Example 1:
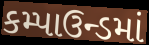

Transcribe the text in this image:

કમ્પાઉન્ડમાં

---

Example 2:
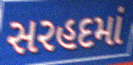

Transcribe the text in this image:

સરહદમાં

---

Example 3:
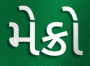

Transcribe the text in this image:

મેક્રો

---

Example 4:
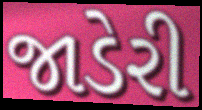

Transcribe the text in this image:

જાડેરી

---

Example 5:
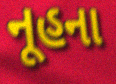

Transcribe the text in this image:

નૂહના